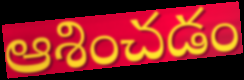
ఆశించడం